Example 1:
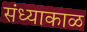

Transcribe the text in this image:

संध्याकाळ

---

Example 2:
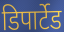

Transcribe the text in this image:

डिपार्टेड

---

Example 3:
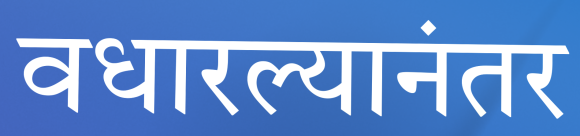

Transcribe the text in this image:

वधारल्यानंतर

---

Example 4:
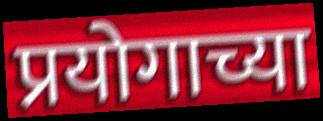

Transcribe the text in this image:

प्रयोगाच्या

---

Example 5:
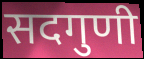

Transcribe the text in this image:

सदगुणी